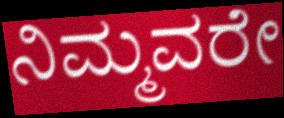
ನಿಮ್ಮವರೇ